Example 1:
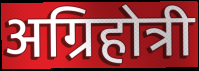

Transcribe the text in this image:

अग्रिहोत्री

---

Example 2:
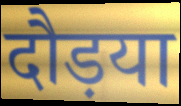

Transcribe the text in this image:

दौड़या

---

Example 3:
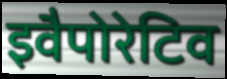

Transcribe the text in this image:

इवैपोरेटिव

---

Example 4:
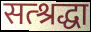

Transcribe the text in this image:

सत्श्रद्धा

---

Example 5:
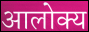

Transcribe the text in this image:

आलोक्य